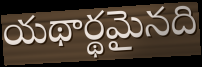
యథార్థమైనది